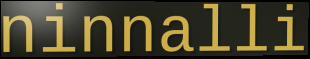
ninnalli